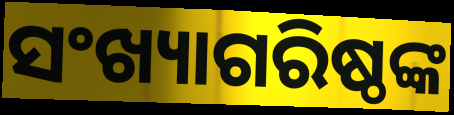
ସଂଖ୍ୟାଗରିଷ୍ଠଙ୍କ